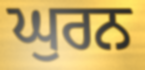
ਘੁਰਨ